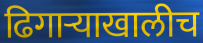
ढिगाऱ्याखालीच